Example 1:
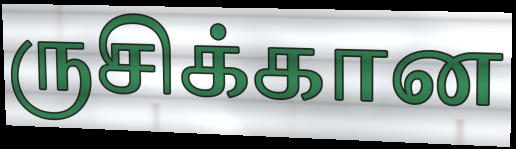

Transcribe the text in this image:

ருசிக்கான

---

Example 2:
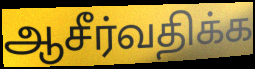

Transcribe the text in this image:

ஆசீர்வதிக்க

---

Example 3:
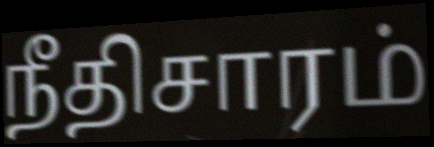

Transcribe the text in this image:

நீதிசாரம்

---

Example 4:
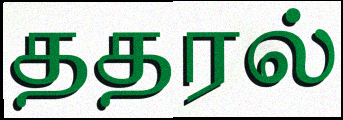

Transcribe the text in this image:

ததரல்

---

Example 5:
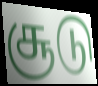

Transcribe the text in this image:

சூடு